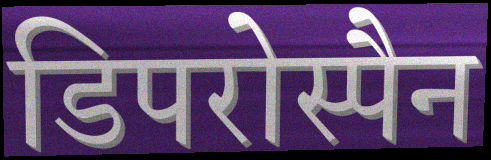
डिपरोस्पैन